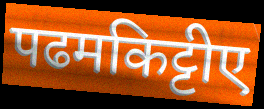
पढमकिट्टीए